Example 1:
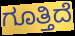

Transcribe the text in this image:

ಗೂತ್ತಿದೆ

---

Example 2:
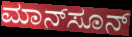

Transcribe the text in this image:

ಮಾನ್‌ಸೂನ್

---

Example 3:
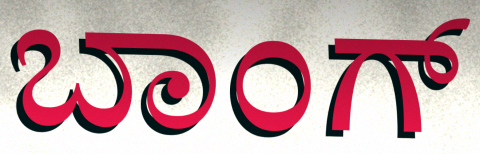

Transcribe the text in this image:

ಬಾಂಗ್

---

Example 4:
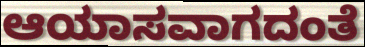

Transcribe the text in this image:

ಆಯಾಸವಾಗದಂತೆ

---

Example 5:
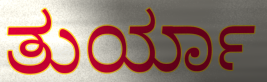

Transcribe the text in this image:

ತುರ್ಯಾ